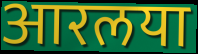
आरलया